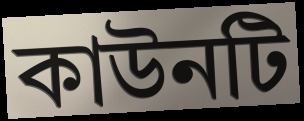
কাউনটি